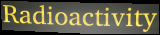
Radioactivity